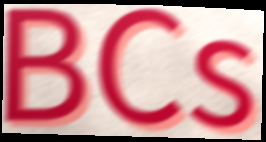
BCs